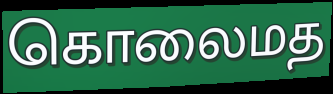
கொலைமத